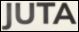
JUTA